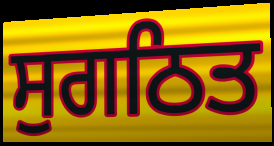
ਸੁਗਠਿਤ